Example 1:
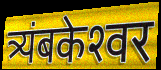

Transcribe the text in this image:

त्र्यंबकेश्वर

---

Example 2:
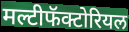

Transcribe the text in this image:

मल्टीफॅक्टोरियल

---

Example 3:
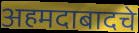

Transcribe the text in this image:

अहमदाबादचे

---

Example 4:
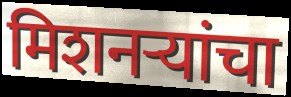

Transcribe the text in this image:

मिशनऱ्यांचा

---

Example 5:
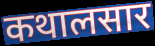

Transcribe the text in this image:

कथालसार